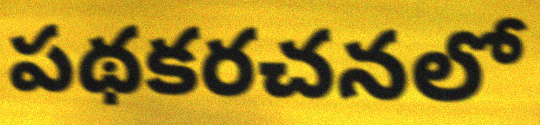
పథకరచనలో